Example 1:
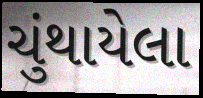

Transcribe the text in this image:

ચુંથાયેલા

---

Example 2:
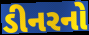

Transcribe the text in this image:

ડીનરનો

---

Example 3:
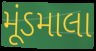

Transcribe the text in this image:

મૂંડમાલા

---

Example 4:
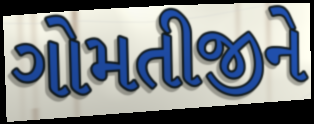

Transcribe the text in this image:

ગોમતીજીને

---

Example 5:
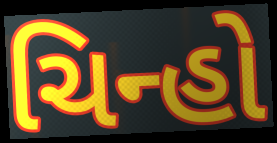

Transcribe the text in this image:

ચિન્હો